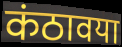
कंठावया